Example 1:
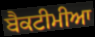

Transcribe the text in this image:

ਬੈਕਟੀਮੀਆ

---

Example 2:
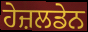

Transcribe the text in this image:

ਹੇਜ਼ਲਡੇਨ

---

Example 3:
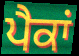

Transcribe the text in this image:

ਪੈਕਾਂ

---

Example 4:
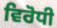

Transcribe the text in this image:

ਵਿਰੋਧੀ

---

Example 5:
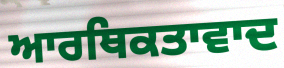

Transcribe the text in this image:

ਆਰਥਿਕਤਾਵਾਦ